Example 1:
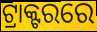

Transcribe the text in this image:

ଟ୍ରାକ୍ଟରରେ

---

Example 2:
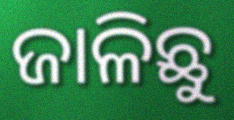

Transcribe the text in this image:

ଜାଳିଛୁ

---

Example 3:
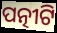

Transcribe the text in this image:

ପତ୍ନୀଟି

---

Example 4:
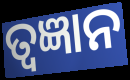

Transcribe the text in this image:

ତ୍ୱଜ୍ଞାନ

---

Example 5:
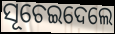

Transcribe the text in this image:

ସୂଚେଇଦେଲେ